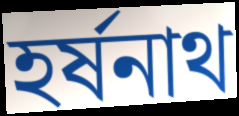
হর্ষনাথ